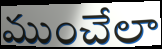
ముంచేలా